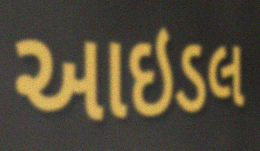
આઇડલ